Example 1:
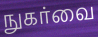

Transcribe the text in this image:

நுகர்வை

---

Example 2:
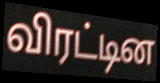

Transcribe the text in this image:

விரட்டின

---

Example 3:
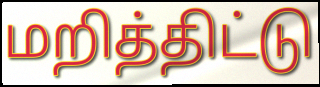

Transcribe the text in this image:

மறித்திட்டு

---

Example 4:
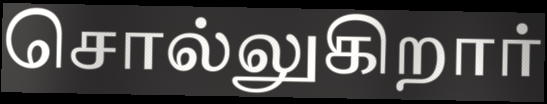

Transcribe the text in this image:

சொல்லுகிறார்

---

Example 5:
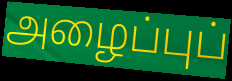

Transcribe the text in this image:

அழைப்புப்